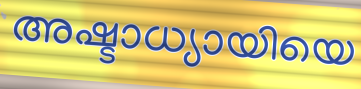
അഷ്ടാധ്യായിയെ